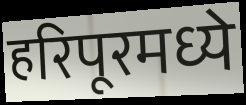
हरिपूरमध्ये